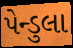
પેન્ડુલા